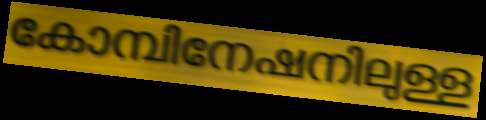
കോമ്പിനേഷനിലുള്ള